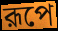
রূপে